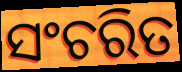
ସଂଚରିତ